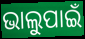
ଭାଲୁପାଇଁ